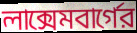
লাক্সেমবার্গের